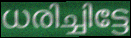
ധരിച്ചിട്ടേ